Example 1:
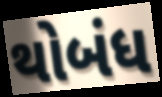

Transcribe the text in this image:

થોબંધ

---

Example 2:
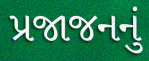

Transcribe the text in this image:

પ્રજાજનનું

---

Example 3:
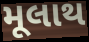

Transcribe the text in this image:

મૂલાથ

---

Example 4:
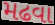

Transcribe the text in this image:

મઢવા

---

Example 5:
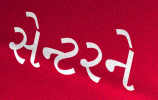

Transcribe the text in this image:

સેન્ટરને